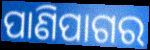
ପାଣିପାଗର